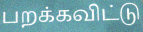
பறக்கவிட்டு